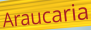
Araucaria